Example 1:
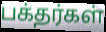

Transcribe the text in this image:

பக்தர்கள்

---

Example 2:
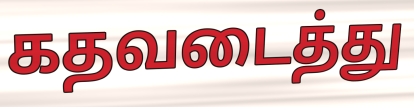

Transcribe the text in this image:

கதவடைத்து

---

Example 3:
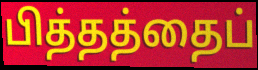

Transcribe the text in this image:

பித்தத்தைப்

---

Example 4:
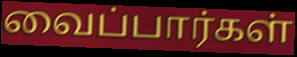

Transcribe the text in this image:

வைப்பார்கள்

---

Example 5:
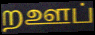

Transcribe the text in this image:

றஊப்